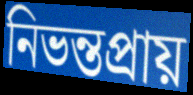
নিভন্তপ্রায়